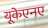
यूकेएनए